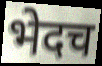
भेदच